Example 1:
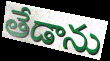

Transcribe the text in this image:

తేడాను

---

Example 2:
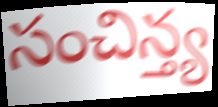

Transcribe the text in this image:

సంచిన్త్య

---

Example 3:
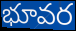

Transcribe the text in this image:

భూవర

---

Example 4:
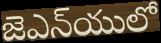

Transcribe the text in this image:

జెఎన్‌యులో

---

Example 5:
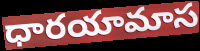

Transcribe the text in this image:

ధారయామాస